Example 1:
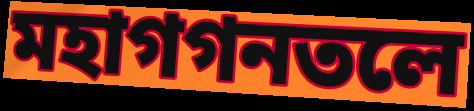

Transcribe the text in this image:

মহাগগনতলে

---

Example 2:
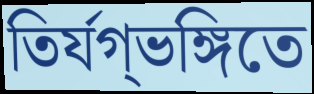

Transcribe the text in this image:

তির্যগ্ভঙ্গিতে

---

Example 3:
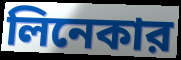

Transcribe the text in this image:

লিনেকার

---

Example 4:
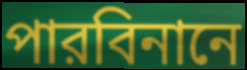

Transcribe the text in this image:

পারবিনানে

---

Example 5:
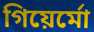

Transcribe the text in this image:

গিয়ের্মো